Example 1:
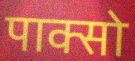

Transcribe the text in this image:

पाक्सो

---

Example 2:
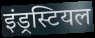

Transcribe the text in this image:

इंड्रस्टियल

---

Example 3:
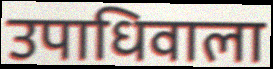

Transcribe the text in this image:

उपाधिवाला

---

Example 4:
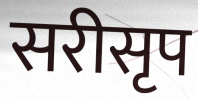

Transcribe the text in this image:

सरीसृप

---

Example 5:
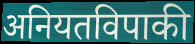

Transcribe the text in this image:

अनियतविपाकी